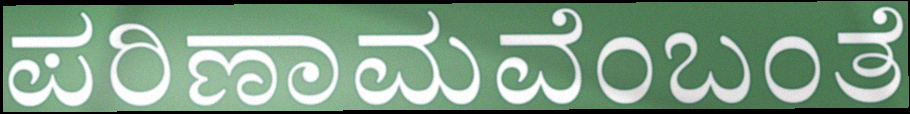
ಪರಿಣಾಮವೆಂಬಂತೆ